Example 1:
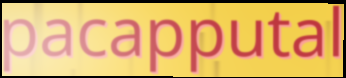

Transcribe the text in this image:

pacapputal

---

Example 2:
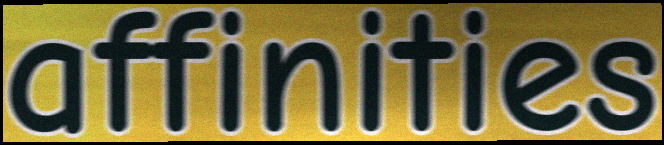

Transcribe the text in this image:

affinities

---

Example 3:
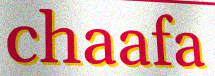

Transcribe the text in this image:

chaafa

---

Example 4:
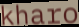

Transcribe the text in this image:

kharo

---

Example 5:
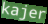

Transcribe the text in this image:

kajer